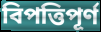
বিপত্তিপূর্ণ